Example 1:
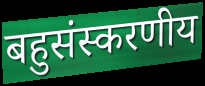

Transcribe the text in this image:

बहुसंस्करणीय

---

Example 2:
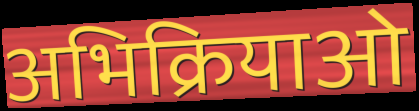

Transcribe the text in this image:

अभिक्रियाओ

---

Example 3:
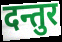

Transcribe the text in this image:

दन्तुर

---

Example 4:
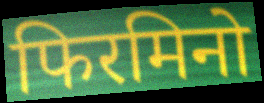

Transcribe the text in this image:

फिरमिनो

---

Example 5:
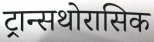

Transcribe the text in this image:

ट्रान्सथोरासिक